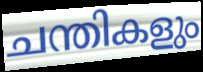
ചന്തികളും